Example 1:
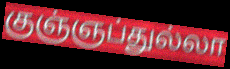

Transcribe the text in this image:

குஞ்ஞப்துல்லா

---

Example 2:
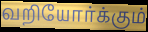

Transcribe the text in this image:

வறியோர்க்கும்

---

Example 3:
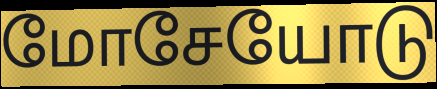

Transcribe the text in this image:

மோசேயோடு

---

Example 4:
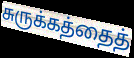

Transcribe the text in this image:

சுருக்கத்தைத்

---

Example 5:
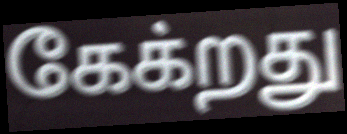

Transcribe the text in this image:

கேக்றது